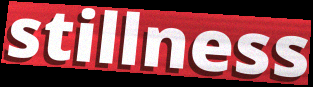
stillness